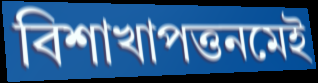
বিশাখাপত্তনমেই